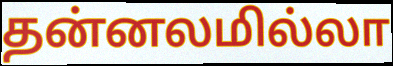
தன்னலமில்லா